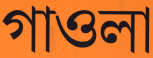
গাওলা